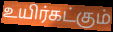
உயிர்கட்கும்